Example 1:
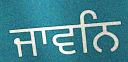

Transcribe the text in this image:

ਜਾਵਨਿ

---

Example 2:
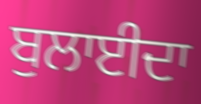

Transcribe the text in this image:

ਬੁਲਾਈਦਾ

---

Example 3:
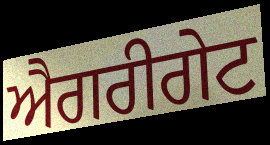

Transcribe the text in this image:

ਐਗਰੀਗੇਟ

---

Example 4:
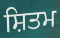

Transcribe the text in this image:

ਸ਼ਿਤਮ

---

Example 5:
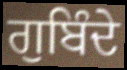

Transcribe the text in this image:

ਗੁਬਿੰਦੇ